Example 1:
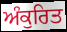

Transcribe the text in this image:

ਅੰਕੁਰਿਤ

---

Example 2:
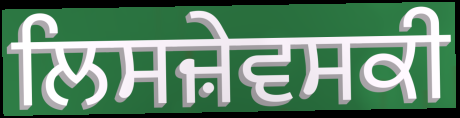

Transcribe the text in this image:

ਲਿਸਜ਼ੇਵਸਕੀ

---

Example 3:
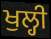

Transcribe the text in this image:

ਖੁਲ੍ਹੀ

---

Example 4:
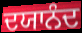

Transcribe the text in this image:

ਦਯਾਨੰਦ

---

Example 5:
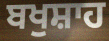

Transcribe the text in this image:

ਬਖੁਸ਼ਾਹ